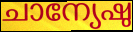
ചാന്യേഷു